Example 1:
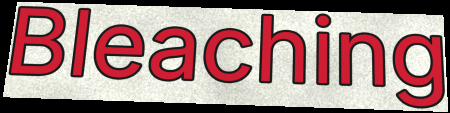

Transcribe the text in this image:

Bleaching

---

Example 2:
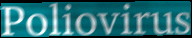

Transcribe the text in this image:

Poliovirus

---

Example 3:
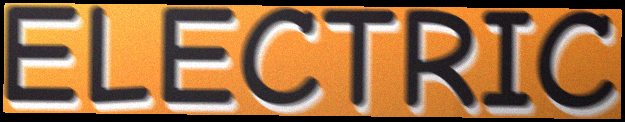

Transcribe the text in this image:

ELECTRIC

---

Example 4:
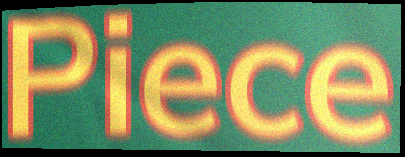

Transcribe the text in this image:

Piece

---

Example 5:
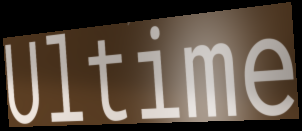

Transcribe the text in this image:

Ultime